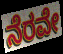
ನೆರವೇ